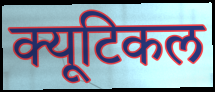
क्यूटिकल